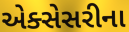
એક્સેસરીના